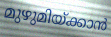
മുഴുമിയ്ക്കാൻ